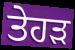
ਤੇਹੜ